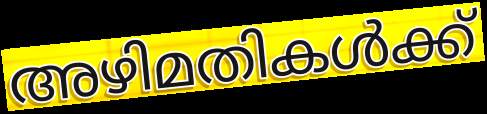
അഴിമതികൾക്ക്